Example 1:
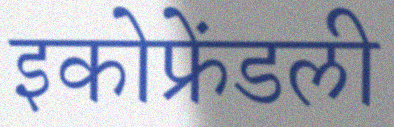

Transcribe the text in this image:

इकोफ्रेंडली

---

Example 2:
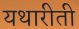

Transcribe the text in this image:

यथारीती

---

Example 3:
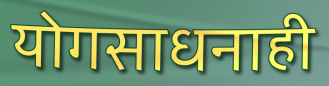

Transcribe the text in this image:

योगसाधनाही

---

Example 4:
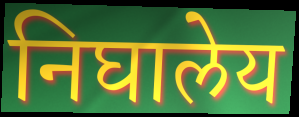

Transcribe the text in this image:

निघालेय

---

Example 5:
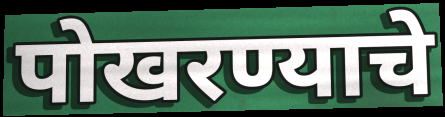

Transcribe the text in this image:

पोखरण्याचे